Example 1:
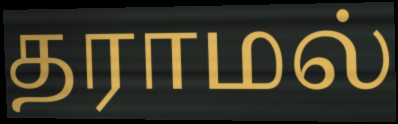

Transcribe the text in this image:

தராமல்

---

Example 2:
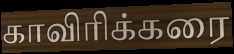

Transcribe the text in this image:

காவிரிக்கரை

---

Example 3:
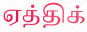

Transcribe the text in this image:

ஏத்திக்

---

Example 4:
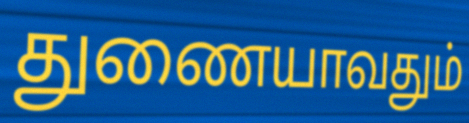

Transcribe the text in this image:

துணையாவதும்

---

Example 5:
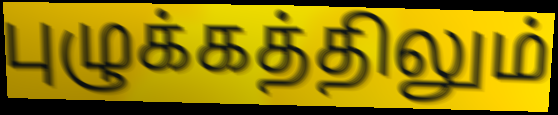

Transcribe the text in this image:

புழுக்கத்திலும்